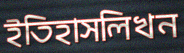
ইতিহাসলিখন